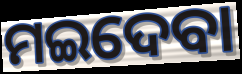
ମଇଦେବା